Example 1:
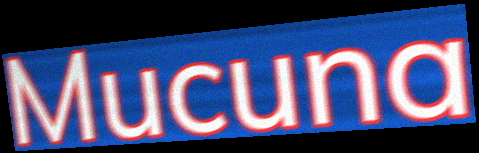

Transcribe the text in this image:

Mucuna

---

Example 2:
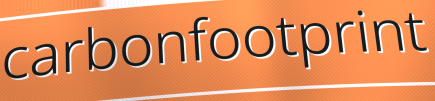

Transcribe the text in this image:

carbonfootprint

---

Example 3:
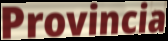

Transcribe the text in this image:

Provincia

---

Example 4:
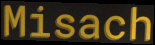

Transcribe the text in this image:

Misach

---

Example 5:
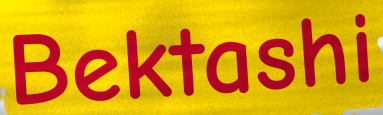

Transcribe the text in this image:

Bektashi